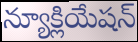
న్యూక్లియేషన్